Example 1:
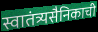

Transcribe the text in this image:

स्वातंत्र्यसैनिकाची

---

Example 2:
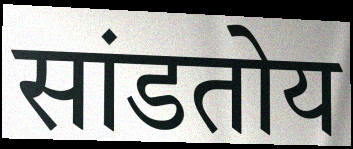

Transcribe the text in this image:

सांडतोय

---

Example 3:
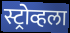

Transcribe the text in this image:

स्ट्रोव्हला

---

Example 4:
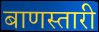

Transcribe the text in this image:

बाणस्तारी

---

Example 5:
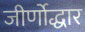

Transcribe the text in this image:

जीर्णोद्धार